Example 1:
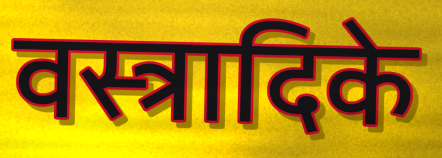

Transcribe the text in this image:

वस्त्रादिके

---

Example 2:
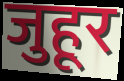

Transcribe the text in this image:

जुहूर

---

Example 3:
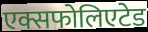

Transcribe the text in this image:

एक्सफोलिएटेड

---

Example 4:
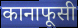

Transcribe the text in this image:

कानाफूसी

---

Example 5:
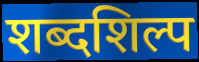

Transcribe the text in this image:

शब्दशिल्प